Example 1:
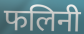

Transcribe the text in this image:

फलिनी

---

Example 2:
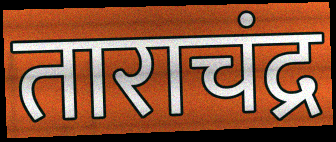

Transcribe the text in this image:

ताराचंद्र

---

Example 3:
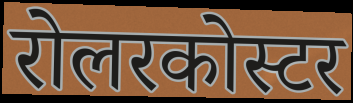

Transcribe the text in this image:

रोलरकोस्टर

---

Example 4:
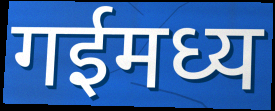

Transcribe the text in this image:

गईमध्य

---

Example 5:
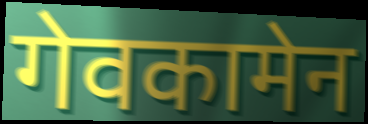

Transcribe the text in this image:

गेवकामेन